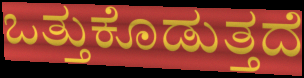
ಒತ್ತುಕೊಡುತ್ತದೆ